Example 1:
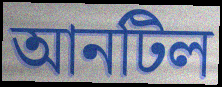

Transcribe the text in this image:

আনটিল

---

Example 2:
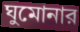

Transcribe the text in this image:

ঘুমোনার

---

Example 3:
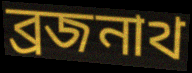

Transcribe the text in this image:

ব্রজনাথ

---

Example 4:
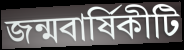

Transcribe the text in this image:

জন্মবার্ষিকীটি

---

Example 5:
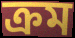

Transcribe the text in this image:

ক্রম